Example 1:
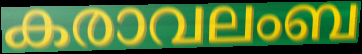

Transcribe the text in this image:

കരാവലംബ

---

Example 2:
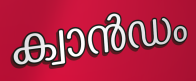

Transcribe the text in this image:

ക്വാൻഡം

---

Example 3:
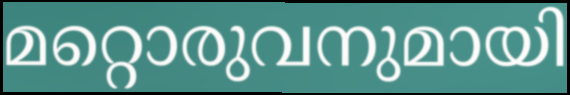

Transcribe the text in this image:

മറ്റൊരുവനുമായി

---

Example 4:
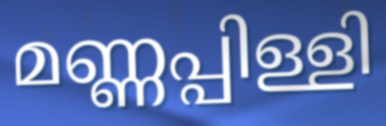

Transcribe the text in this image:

മണ്ണപ്പിള്ളി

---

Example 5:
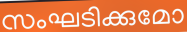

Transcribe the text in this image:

സംഘടിക്കുമോ